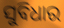
ସୁବିଧାର